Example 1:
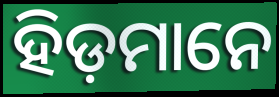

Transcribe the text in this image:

ହିଡ଼ମାନେ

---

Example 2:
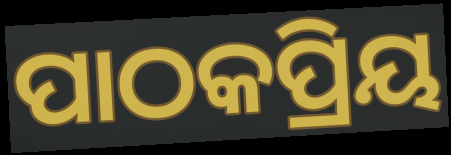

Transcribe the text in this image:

ପାଠକପ୍ରିୟ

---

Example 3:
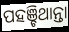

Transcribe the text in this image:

ପହଞ୍ଚିଥାନ୍ତା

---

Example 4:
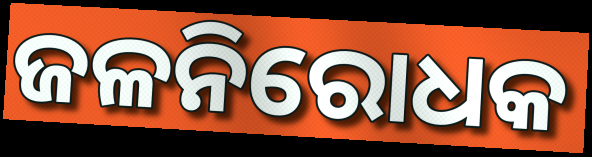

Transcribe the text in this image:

ଜଳନିରୋଧକ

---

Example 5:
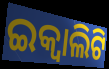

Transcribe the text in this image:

ଇକ୍ୱାଲିଟି